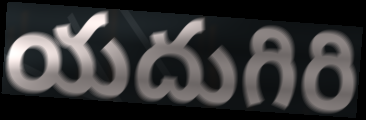
యదుగిరి